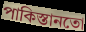
পাকিস্তানতো